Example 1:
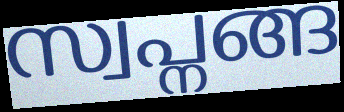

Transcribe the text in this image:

സ്വപ്നങ്ങ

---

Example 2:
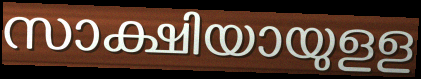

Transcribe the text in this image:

സാക്ഷിയായുളള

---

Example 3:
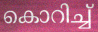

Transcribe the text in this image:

കൊറിച്ച്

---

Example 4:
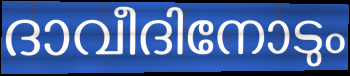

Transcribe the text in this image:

ദാവീദിനോടും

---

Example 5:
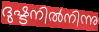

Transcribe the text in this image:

ദുഷ്ടനിൽനിന്നു